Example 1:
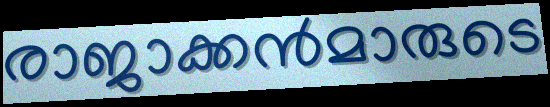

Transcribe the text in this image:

രാജാക്കൻമാരുടെ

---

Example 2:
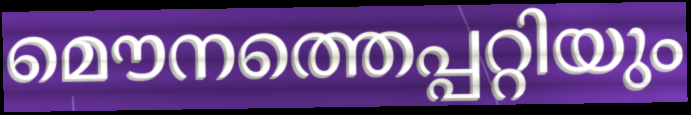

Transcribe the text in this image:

മൌനത്തെപ്പറ്റിയും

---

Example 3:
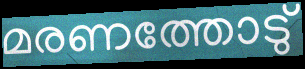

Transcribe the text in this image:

മരണത്തോടു്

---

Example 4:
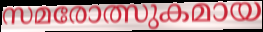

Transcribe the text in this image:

സമരോത്സുകമായ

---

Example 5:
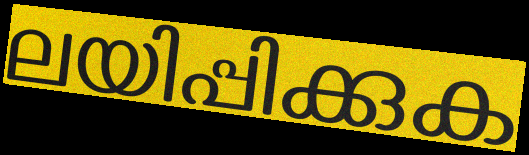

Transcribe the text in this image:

ലയിപ്പിക്കുക